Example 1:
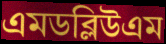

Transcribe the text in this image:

এমডব্লিউএম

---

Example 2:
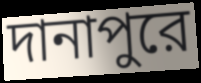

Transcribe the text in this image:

দানাপুরে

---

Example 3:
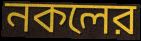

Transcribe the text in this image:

নকলের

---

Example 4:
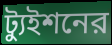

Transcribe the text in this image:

ট্যুইশনের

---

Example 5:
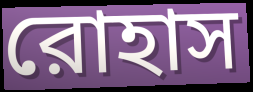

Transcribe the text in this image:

রোহাস